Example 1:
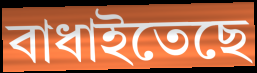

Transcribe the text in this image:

বাধাইতেছে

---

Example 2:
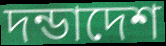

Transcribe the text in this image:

দন্ডাদেশ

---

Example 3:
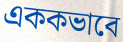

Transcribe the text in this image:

এককভাবে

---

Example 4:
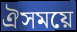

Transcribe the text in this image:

ঐসময়ে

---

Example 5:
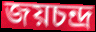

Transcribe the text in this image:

জয়চন্দ্র